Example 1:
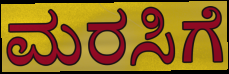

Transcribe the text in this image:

ಮರಸಿಗೆ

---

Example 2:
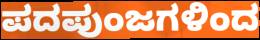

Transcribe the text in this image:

ಪದಪುಂಜಗಳಿಂದ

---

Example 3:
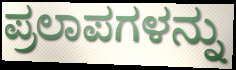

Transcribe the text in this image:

ಪ್ರಲಾಪಗಳನ್ನು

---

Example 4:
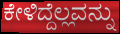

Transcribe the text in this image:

ಕೇಳಿದ್ದೆಲ್ಲವನ್ನು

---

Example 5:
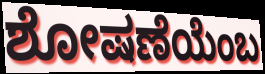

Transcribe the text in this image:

ಶೋಷಣೆಯೆಂಬ